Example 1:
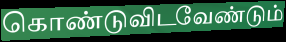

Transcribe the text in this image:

கொண்டுவிடவேண்டும்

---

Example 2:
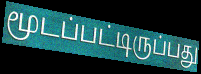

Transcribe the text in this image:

மூடப்பட்டிருப்பது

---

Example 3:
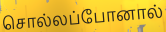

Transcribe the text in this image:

சொல்லப்போனால்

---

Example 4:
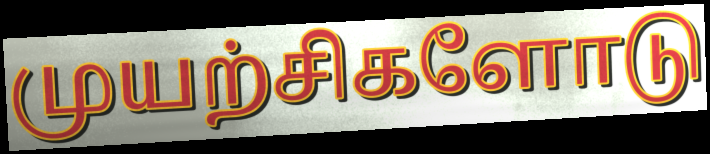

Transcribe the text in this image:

முயற்சிகளோடு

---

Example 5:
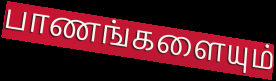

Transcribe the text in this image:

பாணங்களையும்